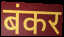
बंकर